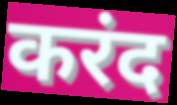
करंद